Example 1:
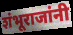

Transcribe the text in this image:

शंभूराजांनी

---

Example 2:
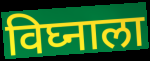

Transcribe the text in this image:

विघ्नाला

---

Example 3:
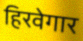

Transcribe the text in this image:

हिरवेगार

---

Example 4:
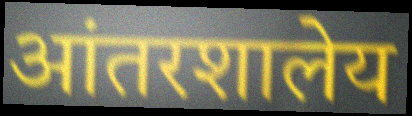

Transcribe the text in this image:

आंतरशालेय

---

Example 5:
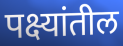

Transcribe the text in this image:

पक्ष्यांतील